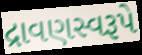
દ્રાવણસ્વરૂપે